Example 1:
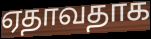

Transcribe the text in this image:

ஏதாவதாக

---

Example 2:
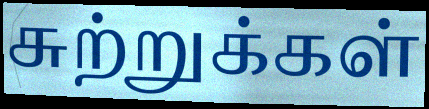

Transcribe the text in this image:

சுற்றுக்கள்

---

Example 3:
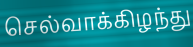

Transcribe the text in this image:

செல்வாக்கிழந்து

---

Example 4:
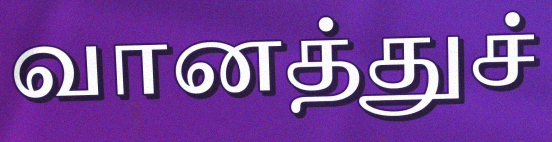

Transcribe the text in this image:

வானத்துச்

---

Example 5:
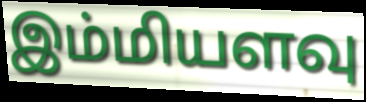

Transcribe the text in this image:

இம்மியளவு